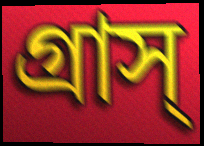
গ্রাস্